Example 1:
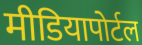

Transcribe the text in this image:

मीडियापोर्टल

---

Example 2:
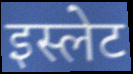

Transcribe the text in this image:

इस्लेट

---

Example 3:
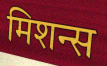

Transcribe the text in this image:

मिशन्स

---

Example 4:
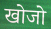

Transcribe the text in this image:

खोजो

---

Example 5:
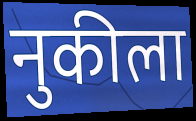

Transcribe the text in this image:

नुकीला